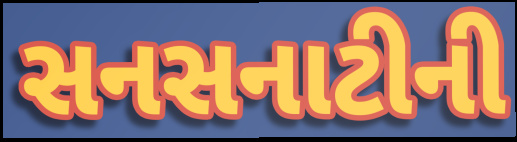
સનસનાટીની